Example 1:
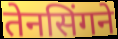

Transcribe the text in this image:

तेनसिंगने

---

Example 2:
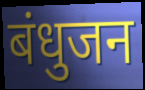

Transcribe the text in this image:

बंधुजन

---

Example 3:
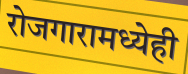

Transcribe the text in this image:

रोजगारामध्येही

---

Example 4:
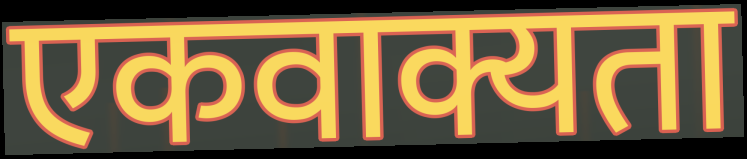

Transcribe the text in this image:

एकवाक्यता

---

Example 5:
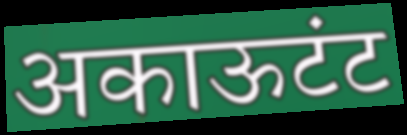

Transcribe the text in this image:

अकाऊटंट